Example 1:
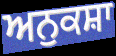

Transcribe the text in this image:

ਅਨੁਕਸ਼ਾ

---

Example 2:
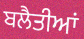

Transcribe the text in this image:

ਬਲੈਤੀਆਂ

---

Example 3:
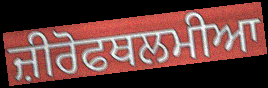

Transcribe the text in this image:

ਜ਼ੀਰੋਫਥਲਮੀਆ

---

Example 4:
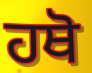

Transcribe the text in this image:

ਹਥੋ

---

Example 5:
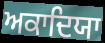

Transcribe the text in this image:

ਅਕਾਦਿਯਾ